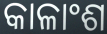
କାଳାଂଶ